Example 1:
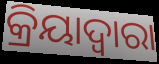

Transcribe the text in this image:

କ୍ରିୟାଦ୍ଵାରା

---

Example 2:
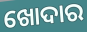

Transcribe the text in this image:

ଖୋଦାର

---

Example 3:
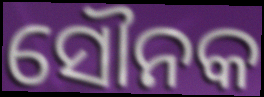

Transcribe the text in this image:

ସୌନକ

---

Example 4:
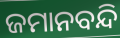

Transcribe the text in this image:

ଜମାନବନ୍ଦି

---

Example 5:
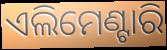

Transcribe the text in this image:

ଏଲିମେଣ୍ଟାରି